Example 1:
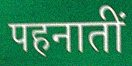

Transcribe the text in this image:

पहनातीं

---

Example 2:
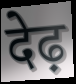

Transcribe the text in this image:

देढ़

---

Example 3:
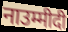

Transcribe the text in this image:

नाउम्मीदी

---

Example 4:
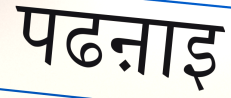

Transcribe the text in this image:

पढऩाइ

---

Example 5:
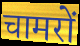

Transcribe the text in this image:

चामरों